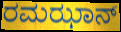
ರಮಝಾನ್